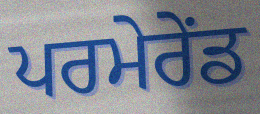
ਪਰਮੇਰੇਂਡ